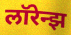
लॉरेन्झ